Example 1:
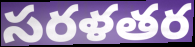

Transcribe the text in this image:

సరళతర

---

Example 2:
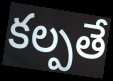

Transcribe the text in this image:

కల్పతే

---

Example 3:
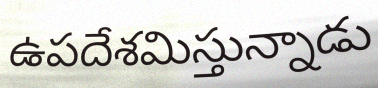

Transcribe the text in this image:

ఉపదేశమిస్తున్నాడు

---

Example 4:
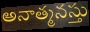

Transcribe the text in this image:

అనాత్మనస్తు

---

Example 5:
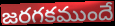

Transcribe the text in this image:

జరగకముందే